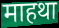
माहथा